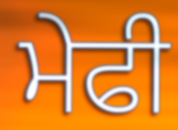
ਮੇਫੀ